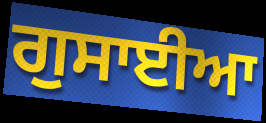
ਗੁਸਾਈਆ